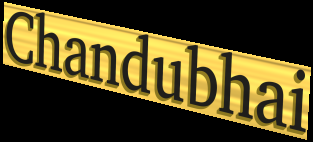
Chandubhai